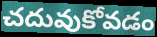
చదువుకోవడం